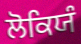
ਲੋਕਿਯੰ